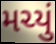
મચ્યું